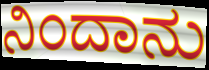
ನಿಂದಾನು